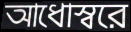
আধোস্বরে